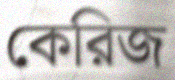
কেরিজ